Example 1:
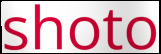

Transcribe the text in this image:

shoto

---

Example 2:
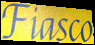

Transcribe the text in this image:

Fiasco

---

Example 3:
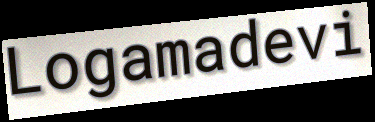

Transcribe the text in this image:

Logamadevi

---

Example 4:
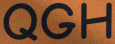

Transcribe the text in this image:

QGH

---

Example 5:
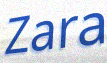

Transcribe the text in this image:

Zara